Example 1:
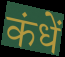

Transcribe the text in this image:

कंधें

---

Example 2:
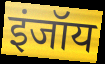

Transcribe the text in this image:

इंजॉय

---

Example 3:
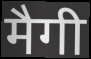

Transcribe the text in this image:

मैगी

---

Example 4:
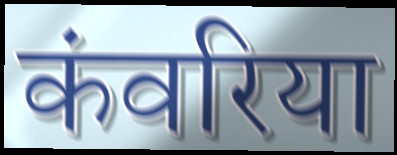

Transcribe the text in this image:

कंवरिया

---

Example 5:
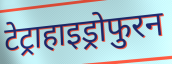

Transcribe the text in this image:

टेट्राहाइड्रोफुरन